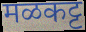
मळकट्ट